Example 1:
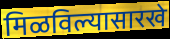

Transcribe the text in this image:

मिळविल्यासारखे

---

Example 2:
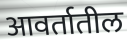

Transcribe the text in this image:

आवर्तातील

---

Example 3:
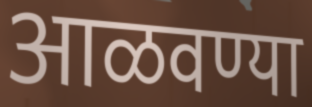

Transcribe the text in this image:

आळवण्या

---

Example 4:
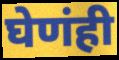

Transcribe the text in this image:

घेणंही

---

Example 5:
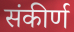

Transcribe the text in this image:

संकीर्ण